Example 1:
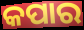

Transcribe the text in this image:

କପାର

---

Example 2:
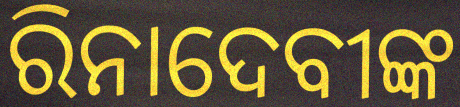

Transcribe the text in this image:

ରିନାଦେବୀଙ୍କ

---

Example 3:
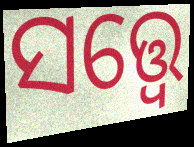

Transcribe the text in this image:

ସତ୍ତ୍ବେ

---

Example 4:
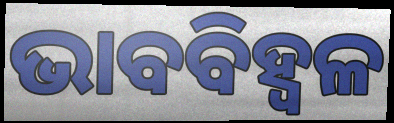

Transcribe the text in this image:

ଭାବବିହ୍ବଳ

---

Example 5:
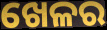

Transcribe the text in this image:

ଖେଳର